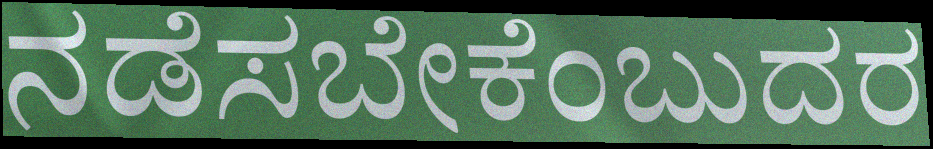
ನಡೆಸಬೇಕೆಂಬುದರ